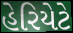
હેરિયેટે